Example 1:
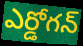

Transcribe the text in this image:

ఎర్డోగన్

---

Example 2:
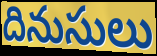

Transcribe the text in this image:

దినుసులు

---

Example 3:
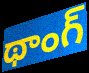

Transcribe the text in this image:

థాంగ్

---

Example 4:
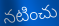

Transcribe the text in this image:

నటించు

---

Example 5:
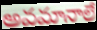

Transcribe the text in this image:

అవమానాలే